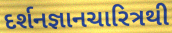
દર્શનજ્ઞાનચારિત્રથી